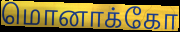
மொனாக்கோ